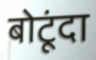
बोटूंदा